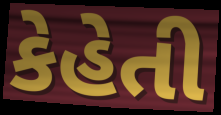
કેહેતી